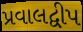
પ્રવાલદ્વીપ